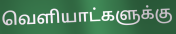
வெளியாட்களுக்கு